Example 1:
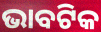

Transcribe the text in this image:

ଭାବଟିକ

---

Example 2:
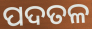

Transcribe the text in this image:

ପଦତଳ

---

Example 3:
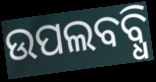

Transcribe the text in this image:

ଉପଲବବ୍ଧି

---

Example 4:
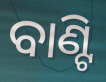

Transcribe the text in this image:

ବାଣ୍ଟି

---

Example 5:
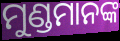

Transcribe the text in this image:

ମୁଣ୍ଡମାନଙ୍କ